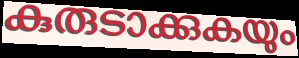
കുരുടാക്കുകയും